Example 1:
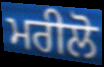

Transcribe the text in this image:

ਮਰੀਲੋ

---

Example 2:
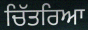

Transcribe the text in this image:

ਚਿੱਤਰਿਆ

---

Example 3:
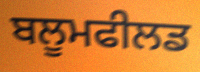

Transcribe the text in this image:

ਬਲੂਮਫੀਲਡ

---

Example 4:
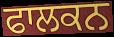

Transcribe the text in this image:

ਫਾਲਕਨ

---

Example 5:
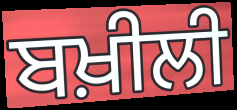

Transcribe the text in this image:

ਬਖ਼ੀਲੀ